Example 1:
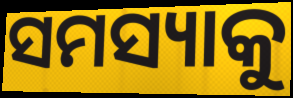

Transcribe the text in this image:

ସମସ୍ୟାକୁ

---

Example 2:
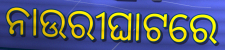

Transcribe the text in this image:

ନାଉରୀଘାଟରେ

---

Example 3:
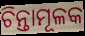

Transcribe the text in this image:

ଚିନ୍ତାମୂଳକ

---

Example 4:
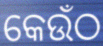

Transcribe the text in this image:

କେଉଁଠ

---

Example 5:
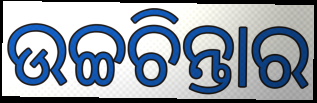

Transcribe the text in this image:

ଉଚ୍ଚଚିନ୍ତାର